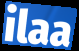
ilaa